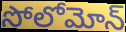
సోలోమోన్